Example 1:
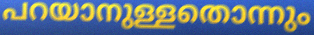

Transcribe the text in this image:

പറയാനുള്ളതൊന്നും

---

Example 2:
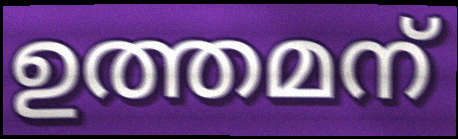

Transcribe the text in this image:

ഉത്തമന്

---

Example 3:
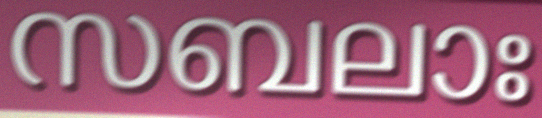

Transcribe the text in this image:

സബലാഃ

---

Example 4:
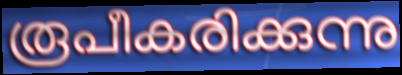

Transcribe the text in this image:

രൂപീകരിക്കുന്നു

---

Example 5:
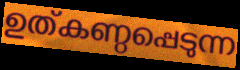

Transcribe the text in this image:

ഉത്കണ്ഠപ്പെടുന്ന